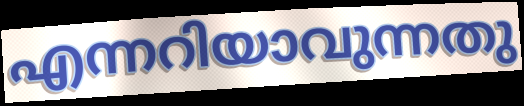
എന്നറിയാവുന്നതു